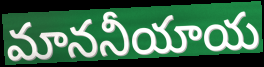
మాననీయాయ